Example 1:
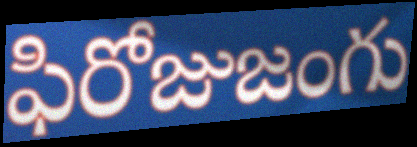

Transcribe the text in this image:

ఫిరోజుజంగు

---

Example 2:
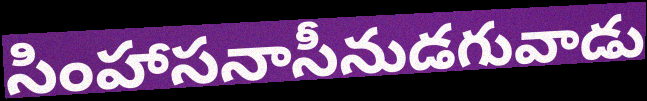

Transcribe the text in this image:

సింహాసనాసీనుడగువాడు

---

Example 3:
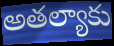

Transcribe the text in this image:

అతల్యాకు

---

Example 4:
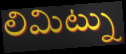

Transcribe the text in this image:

లిమిట్ను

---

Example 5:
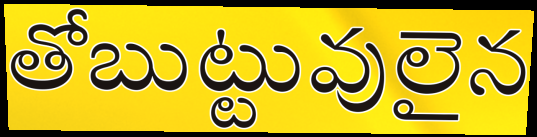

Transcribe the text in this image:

తోబుట్టువులైన